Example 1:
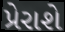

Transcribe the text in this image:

પ્રેરાશે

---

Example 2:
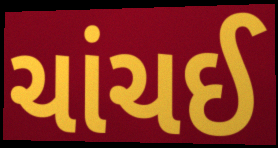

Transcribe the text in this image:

ચાંચઈ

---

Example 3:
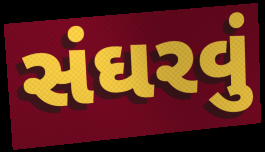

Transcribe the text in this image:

સંઘરવું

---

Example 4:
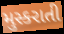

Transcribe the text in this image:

મુસ્કરાતી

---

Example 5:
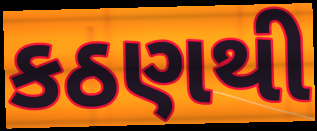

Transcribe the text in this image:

કઠણથી